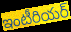
ఇంటీరియర్